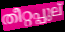
തീറ്റപ്പുല്